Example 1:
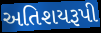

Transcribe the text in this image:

અતિશયરૂપી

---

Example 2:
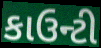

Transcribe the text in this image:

કાઉન્ટી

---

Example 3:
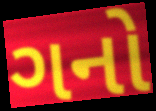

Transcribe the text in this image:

ગનો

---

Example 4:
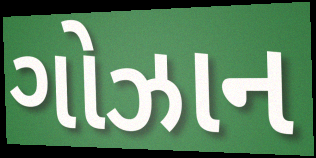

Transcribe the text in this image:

ગોઝાન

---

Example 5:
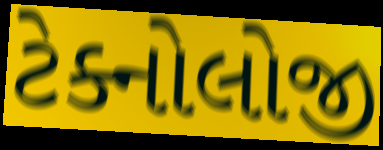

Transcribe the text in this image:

ટેક્નોલોજી